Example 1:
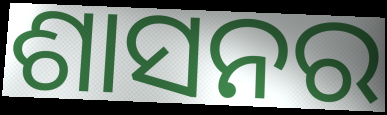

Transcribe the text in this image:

ଶାସନର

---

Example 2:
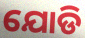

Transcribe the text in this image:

ଯୋଡି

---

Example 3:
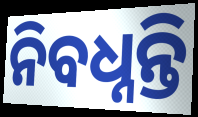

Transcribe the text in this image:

ନିବଧ୍ନନ୍ତି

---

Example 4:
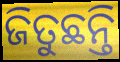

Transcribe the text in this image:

ଜିତୁଛନ୍ତି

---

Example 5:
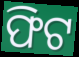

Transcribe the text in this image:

ଫିଟ